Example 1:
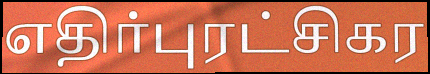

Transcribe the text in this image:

எதிர்புரட்சிகர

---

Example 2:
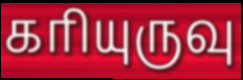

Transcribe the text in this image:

கரியுருவு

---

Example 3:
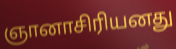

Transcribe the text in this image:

ஞானாசிரியனது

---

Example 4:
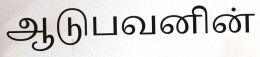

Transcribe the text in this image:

ஆடுபவனின்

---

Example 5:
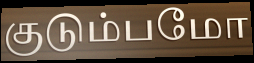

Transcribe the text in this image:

குடும்பமோ